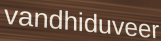
vandhiduveer